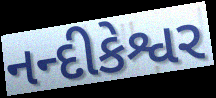
નન્દીકેશ્વર